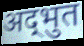
अद्‌भुत